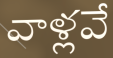
వాళ్లవే